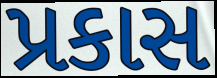
પ્રકાસ